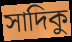
সাদিকু